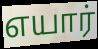
எயார்